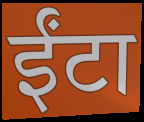
ईंटा